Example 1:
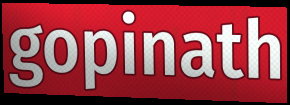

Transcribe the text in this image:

gopinath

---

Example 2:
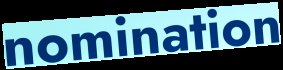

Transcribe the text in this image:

nomination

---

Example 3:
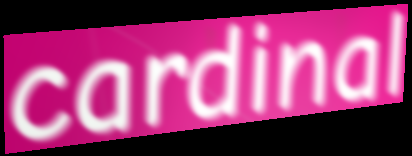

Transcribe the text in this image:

cardinal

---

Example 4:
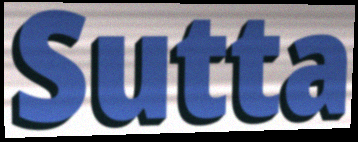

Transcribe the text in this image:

Sutta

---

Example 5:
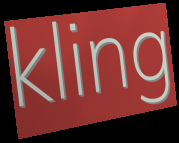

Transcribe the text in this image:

kling